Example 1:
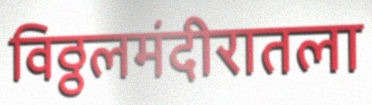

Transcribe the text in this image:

विठ्ठलमंदीरातला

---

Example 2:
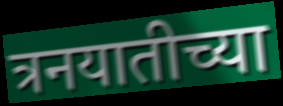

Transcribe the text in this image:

त्रनयातीच्या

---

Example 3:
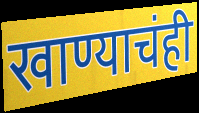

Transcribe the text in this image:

खाण्याचंही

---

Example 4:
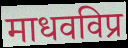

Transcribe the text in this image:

माधवविप्र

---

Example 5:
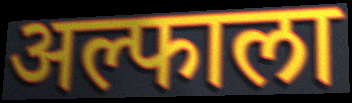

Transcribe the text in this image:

अल्फाला